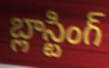
బ్లాస్టింగ్